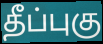
தீப்புகு